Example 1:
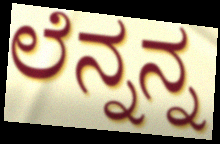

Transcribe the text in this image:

ಲೆನ್ನನ್ನ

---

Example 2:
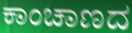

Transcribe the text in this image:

ಕಾಂಚಾಣದ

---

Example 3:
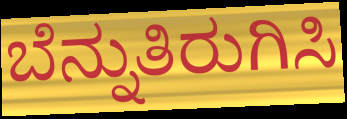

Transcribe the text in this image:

ಬೆನ್ನುತಿರುಗಿಸಿ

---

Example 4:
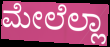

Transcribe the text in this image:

ಮೇಲೆಲ್ಲಾ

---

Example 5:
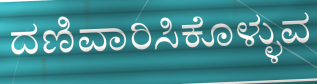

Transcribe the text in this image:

ದಣಿವಾರಿಸಿಕೊಳ್ಳುವ